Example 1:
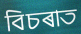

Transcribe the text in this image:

বিচৰাত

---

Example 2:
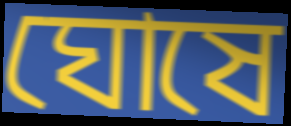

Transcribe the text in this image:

ঘোষে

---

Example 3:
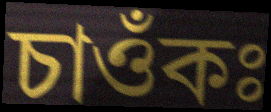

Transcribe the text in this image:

চাওঁকঃ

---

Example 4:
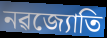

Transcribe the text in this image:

নৱজ্যোতি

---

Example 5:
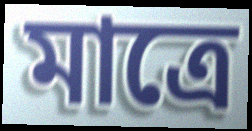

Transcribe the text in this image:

মাত্ৰে